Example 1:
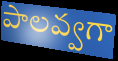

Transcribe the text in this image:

పాలవ్వగా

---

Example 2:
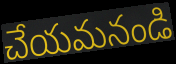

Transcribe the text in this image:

చేయమనండి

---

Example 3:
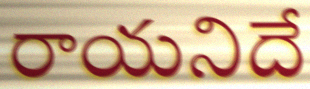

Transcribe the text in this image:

రాయనిదే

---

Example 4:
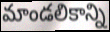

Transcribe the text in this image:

మాండలికాన్ని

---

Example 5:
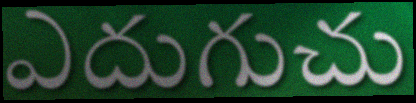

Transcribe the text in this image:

ఎదుగుచు